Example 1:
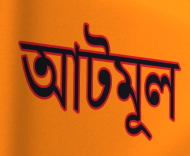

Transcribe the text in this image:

আটমূল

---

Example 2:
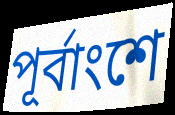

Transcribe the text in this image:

পূর্বাংশে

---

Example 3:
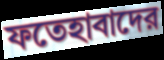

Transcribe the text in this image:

ফতেহাবাদের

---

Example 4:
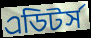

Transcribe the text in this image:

এডিটর্স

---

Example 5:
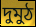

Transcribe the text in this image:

দুমুঠ